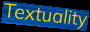
Textuality